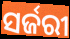
ସର୍ଜରୀ